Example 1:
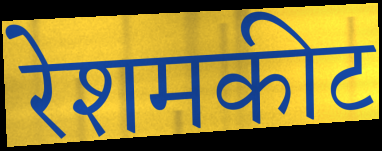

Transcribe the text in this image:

रेशमकीट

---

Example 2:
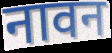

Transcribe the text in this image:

नावन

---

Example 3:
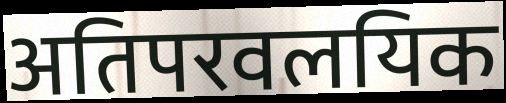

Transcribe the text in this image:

अतिपरवलयिक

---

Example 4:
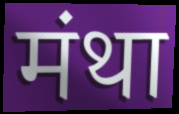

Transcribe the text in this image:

मंथा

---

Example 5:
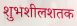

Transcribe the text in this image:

शुभशीलशतक